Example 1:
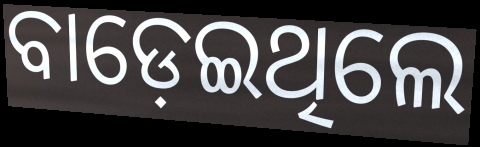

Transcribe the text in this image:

ବାଡ଼େଇଥିଲେ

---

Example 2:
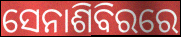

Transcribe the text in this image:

ସେନାଶିବିରରେ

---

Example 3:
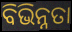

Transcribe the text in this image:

ବିଭିନ୍ନତା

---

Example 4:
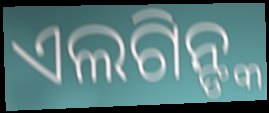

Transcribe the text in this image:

ଏଲଗିନ୍ଙ୍କ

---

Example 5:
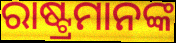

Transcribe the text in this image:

ରାଷ୍ଟ୍ରମାନଙ୍କ